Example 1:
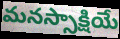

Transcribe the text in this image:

మనస్సాక్షియే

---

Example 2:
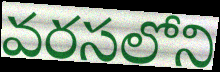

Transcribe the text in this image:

వరసలోని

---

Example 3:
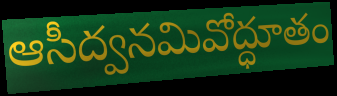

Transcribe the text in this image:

ఆసీద్వనమివోద్ధూతం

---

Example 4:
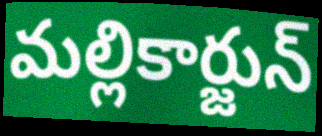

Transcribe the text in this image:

మల్లికార్జున్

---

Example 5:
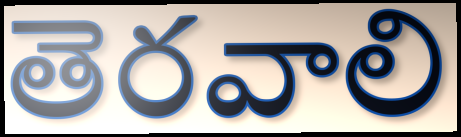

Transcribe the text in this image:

తెరవాలి